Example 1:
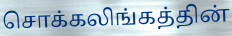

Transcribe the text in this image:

சொக்கலிங்கத்தின்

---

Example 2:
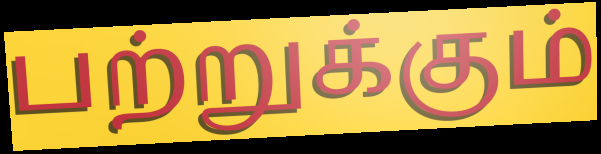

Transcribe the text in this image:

பற்றுக்கும்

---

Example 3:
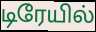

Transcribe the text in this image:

டிரேயில்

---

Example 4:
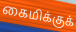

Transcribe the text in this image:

கைமிக்குக்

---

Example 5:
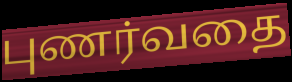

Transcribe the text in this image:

புணர்வதை